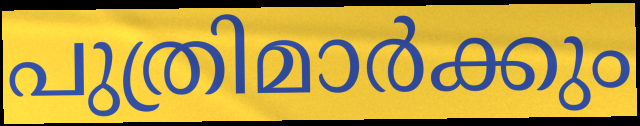
പുത്രിമാർക്കും